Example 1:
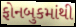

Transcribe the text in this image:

ફોનબુકમાંથી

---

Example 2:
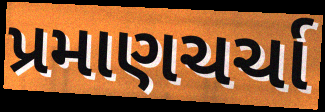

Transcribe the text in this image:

પ્રમાણચર્ચા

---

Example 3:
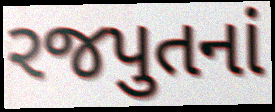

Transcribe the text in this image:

રજપુતનાં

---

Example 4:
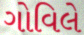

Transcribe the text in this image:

ગોવિલે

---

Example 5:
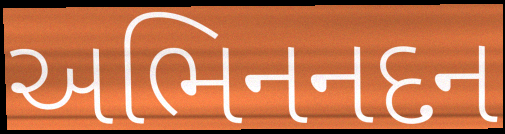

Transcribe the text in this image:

અભિનનદન